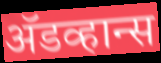
ॲडव्हान्स